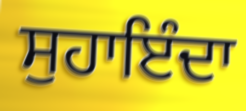
ਸੁਹਾਇੰਦਾ